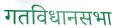
गतविधानसभा